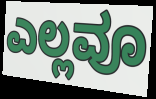
ಎಲ್ಲವೂ